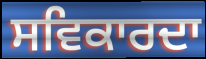
ਸਵਿਕਾਰਦਾ